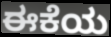
ಈಕೆಯ